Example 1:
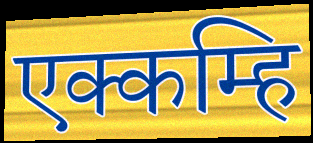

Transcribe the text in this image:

एक्कम्हि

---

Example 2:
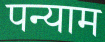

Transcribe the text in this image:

पन्याम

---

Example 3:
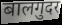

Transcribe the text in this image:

बालगुदर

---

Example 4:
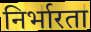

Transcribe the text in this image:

निर्भारता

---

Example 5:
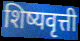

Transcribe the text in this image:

शिष्यवृत्ती